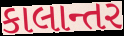
કાલાન્તર